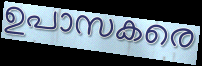
ഉപാസകരെ